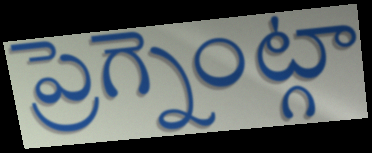
ప్రెగ్నెంట్గా